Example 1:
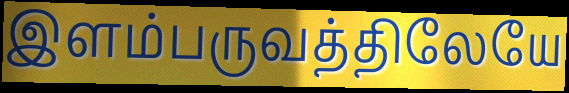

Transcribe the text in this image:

இளம்பருவத்திலேயே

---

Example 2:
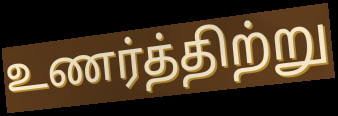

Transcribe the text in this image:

உணர்த்திற்று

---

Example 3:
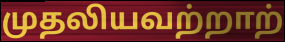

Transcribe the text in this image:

முதலியவற்றாற்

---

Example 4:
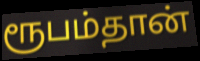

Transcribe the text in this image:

ரூபம்தான்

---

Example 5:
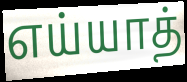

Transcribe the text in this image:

எய்யாத்